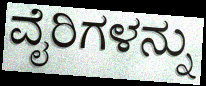
ವೈರಿಗಳನ್ನು